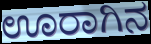
ಊರಾಗಿನ